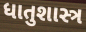
ધાતુશાસ્ત્ર